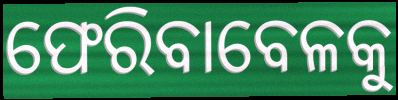
ଫେରିବାବେଳକୁ